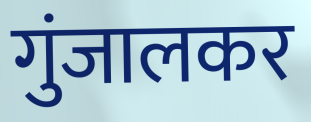
गुंजालकर